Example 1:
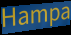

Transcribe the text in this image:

Hampa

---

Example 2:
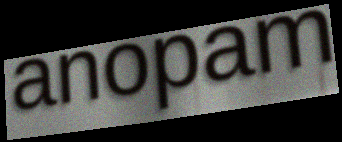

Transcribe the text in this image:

anopam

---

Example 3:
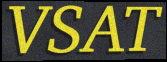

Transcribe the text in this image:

VSAT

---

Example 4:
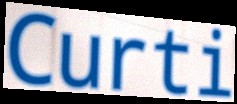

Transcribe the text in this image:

Curti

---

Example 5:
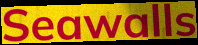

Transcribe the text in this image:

Seawalls